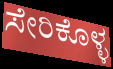
ಸೇರಿಕೊಳ್ಳ